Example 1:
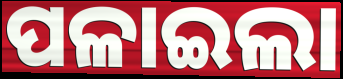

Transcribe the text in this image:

ପଳାଇଲା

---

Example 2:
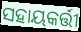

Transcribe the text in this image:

ସହାୟକର୍ତ୍ତୀ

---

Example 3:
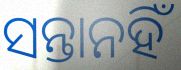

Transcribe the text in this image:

ସନ୍ତାନହିଁ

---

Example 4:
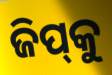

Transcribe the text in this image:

ଜିପ୍‍କୁ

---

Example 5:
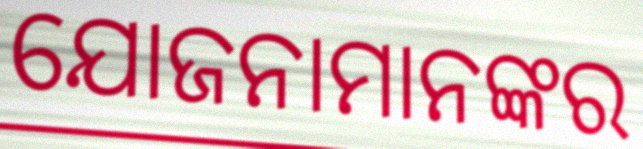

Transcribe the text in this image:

ଯୋଜନାମାନଙ୍କର